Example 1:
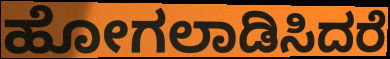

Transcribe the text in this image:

ಹೋಗಲಾಡಿಸಿದರೆ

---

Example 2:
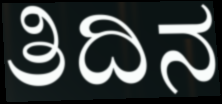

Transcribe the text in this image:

ತಿದಿನ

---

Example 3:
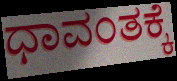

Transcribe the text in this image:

ಧಾವಂತಕ್ಕೆ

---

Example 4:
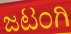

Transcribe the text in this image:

ಜಟಂಗಿ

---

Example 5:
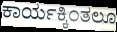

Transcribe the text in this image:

ಕಾರ್ಯಕ್ಕಿಂತಲೂ